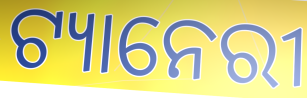
ଟ୍ୟାନେରୀ